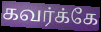
கவர்க்கே